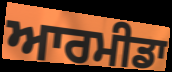
ਆਰਮੀਡਾ